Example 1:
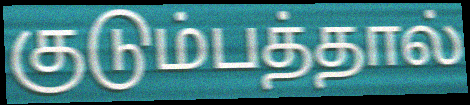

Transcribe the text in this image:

குடும்பத்தால்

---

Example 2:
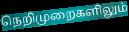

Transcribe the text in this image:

நெறிமுறைகளிலும்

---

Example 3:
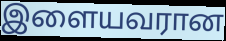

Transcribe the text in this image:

இளையவரான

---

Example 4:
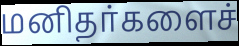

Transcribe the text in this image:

மனிதர்களைச்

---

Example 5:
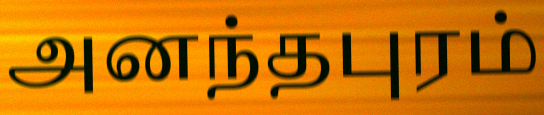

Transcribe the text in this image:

அனந்தபுரம்